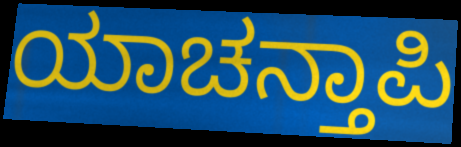
ಯಾಚನ್ತಾಪಿ